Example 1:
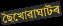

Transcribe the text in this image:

ছৈখোৱাঘাটৰ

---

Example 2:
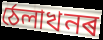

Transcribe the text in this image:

ঠেলাখনৰ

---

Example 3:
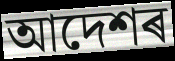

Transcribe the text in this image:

আদেশৰ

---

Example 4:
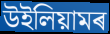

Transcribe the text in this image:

উইলিয়ামৰ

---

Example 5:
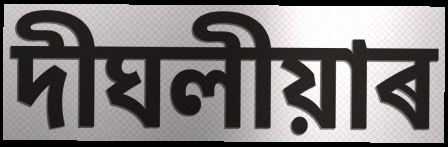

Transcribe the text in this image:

দীঘলীয়াৰ